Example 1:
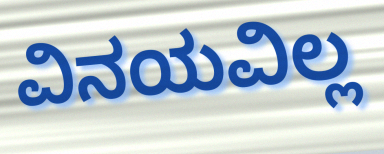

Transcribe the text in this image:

ವಿನಯವಿಲ್ಲ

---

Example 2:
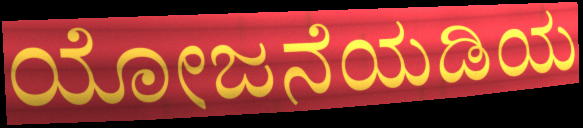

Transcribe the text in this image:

ಯೋಜನೆಯಡಿಯ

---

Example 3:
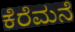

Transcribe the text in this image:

ಕೆರೆಮನೆ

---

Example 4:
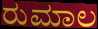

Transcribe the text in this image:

ರುಮಾಲ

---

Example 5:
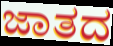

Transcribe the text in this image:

ಜಾತದ